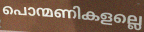
പൊന്മണികളല്ലെ